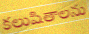
కలుషితాలను